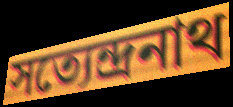
সত্যেন্দ্ৰনাথ